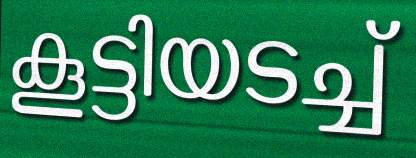
കൂട്ടിയടച്ച്